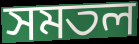
সমতল